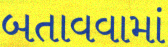
બતાવવામાં